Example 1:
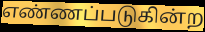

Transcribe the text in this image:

எண்ணப்படுகின்ற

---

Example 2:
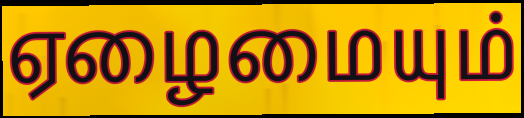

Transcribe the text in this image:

ஏழைமையும்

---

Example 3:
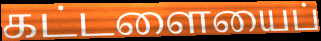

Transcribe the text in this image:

கட்டளையைப்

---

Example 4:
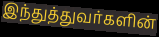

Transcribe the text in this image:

இந்துத்துவர்களின்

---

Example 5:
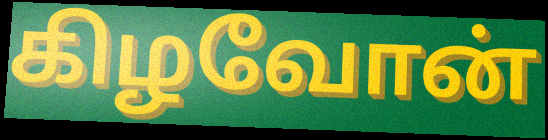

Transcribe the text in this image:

கிழவோன்